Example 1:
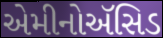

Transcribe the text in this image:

એમીનોઍસિડ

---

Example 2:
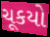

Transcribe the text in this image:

ચૂકયો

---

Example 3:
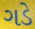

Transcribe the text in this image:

ગડે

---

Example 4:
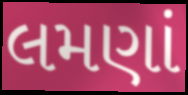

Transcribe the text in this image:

લમણાં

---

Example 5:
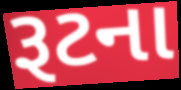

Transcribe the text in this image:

રૂટના